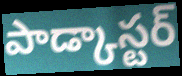
పాడ్కాస్టర్